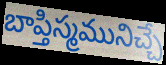
బాప్తిస్మమునిచ్చే